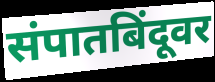
संपातबिंदूवर